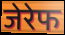
जेरेफ